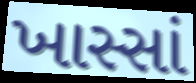
ખાસ્સાં